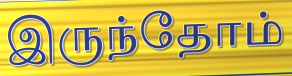
இருந்தோம்